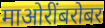
माओरींबरोबर